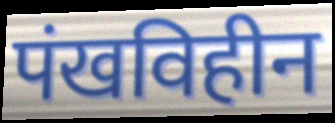
पंखविहीन